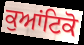
ਕੁਆਂਟਿਕੋ